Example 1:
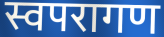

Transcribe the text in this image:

स्वपरागण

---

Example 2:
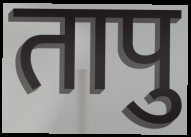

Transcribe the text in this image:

तापु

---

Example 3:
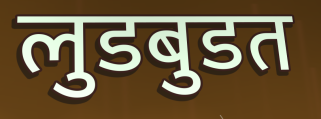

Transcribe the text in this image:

लुडबुडत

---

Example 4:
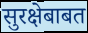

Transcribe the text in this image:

सुरक्षेबाबत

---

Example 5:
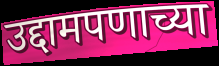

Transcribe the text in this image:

उद्दामपणाच्या